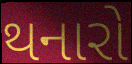
થનારો